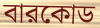
বারকোড